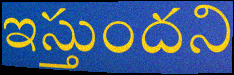
ఇస్తుందని